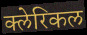
क्लेरिकल